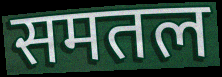
समतल